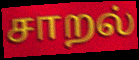
சாறல்